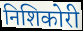
निशिकोरी